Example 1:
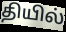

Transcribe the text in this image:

தியில்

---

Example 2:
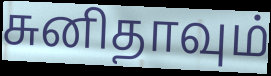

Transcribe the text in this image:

சுனிதாவும்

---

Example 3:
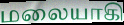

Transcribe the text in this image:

மலையாகி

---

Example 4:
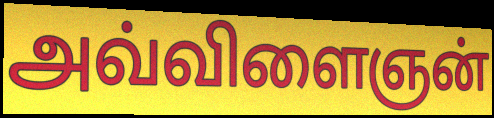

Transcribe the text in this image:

அவ்விளைஞன்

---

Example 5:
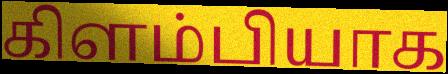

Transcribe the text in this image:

கிளம்பியாக